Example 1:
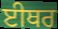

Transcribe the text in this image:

ਈਥਰ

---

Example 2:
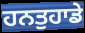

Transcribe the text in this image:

ਹਨਤੁਹਾਡੇ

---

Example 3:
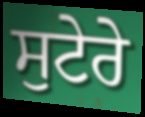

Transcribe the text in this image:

ਸੁਟੇਰੇ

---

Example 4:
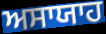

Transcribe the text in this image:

ਅਸਾਯਾਹ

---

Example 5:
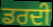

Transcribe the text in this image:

ਡਰਦੀ